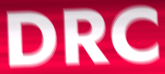
DRC